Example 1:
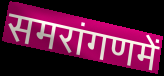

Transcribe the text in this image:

समरांगणमें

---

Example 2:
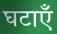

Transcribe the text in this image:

घटाएँ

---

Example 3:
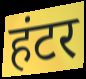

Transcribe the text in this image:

हंटर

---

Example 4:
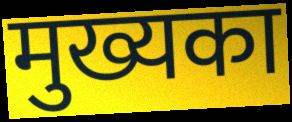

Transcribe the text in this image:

मुख्यका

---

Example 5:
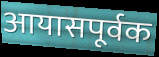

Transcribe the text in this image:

आयासपूर्वक